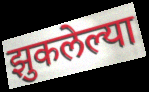
झुकलेल्या